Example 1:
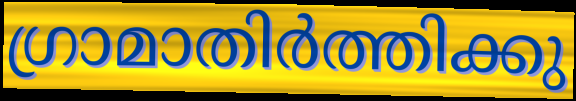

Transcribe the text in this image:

ഗ്രാമാതിർത്തിക്കു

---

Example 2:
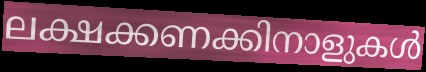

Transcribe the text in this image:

ലക്ഷക്കണക്കിനാളുകൾ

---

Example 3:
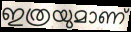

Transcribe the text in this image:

ഇത്രയുമാണ്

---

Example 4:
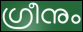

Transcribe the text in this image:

ഗ്രീനും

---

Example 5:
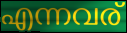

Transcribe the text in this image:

എന്നവര്